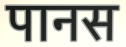
पानस